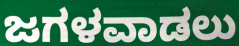
ಜಗಳವಾಡಲು